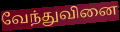
வேந்துவினை